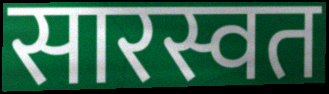
सारस्वत